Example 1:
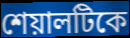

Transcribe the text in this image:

শেয়ালটিকে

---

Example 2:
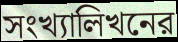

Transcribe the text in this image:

সংখ্যালিখনের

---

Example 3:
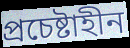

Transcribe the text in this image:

প্রচেষ্টাহীন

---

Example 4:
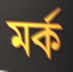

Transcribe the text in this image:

মর্ক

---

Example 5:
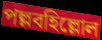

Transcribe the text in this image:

পল্লবহিল্লোল